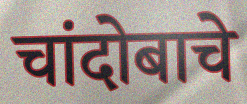
चांदोबाचे